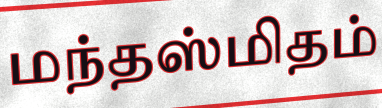
மந்தஸ்மிதம்